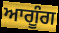
ਆਗੂੰਗ